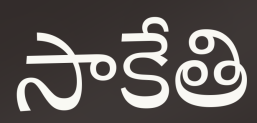
సాకేతి